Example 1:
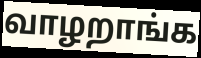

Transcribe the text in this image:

வாழறாங்க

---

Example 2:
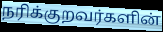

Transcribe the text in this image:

நரிக்குறவர்களின்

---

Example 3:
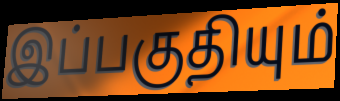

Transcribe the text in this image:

இப்பகுதியும்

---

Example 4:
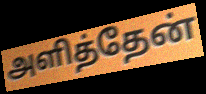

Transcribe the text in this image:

அளித்தேன்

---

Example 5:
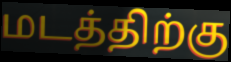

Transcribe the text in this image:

மடத்திற்கு